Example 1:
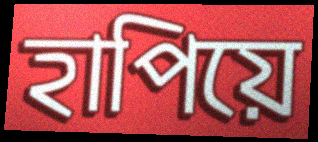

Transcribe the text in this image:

হাপিয়ে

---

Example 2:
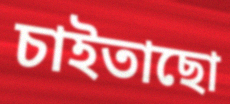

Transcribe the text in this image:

চাইতাছো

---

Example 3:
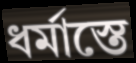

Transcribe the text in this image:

ধর্মাস্তে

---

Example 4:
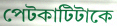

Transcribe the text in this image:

পেটকাটিটাকে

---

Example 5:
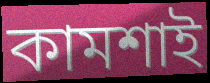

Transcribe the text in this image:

কামশাই